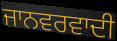
ਜਾਨਵਰਵਾਦੀ